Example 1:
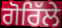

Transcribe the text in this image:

ਗੋਰਿੱਲੇ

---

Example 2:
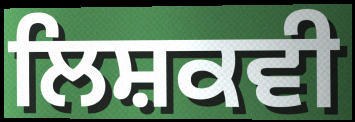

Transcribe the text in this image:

ਲਿਸ਼ਕਵੀ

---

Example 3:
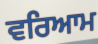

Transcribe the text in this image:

ਵਰਿਆਮ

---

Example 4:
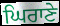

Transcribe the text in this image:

ਘਿਰਾਣੇ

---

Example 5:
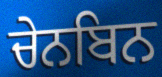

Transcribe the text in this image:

ਚੇਨਬਿਨ